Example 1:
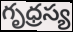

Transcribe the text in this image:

గృధ్రస్య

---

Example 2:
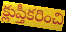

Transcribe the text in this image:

క్లుప్తీకరించి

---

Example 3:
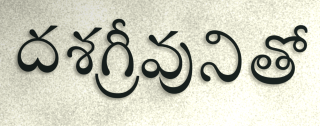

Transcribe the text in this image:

దశగ్రీవునితో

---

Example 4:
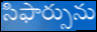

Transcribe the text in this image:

సిఫార్సును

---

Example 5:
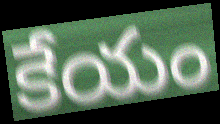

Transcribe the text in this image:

కేయం